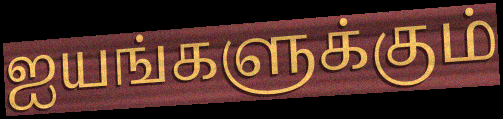
ஐயங்களுக்கும்